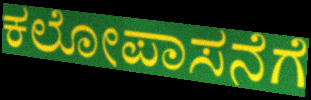
ಕಲೋಪಾಸನೆಗೆ